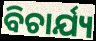
ବିଚାର୍ଯ୍ୟ